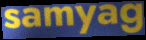
samyag